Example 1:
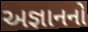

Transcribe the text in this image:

અજ્ઞાનનો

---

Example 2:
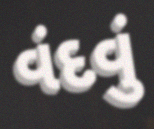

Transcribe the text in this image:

વંદવું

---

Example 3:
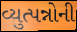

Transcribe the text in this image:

વ્યુત્પન્નોની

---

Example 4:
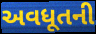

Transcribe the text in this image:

અવધૂતની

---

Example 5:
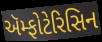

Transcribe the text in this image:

ઍમ્ફોટેરિસિન